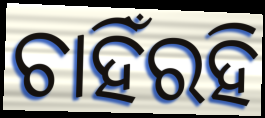
ଚାହିଁରହି